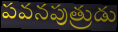
పవనపుత్రుడు